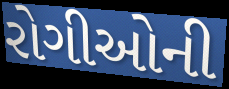
રોગીઓની